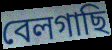
বেলগাছি